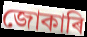
জোকাৰি